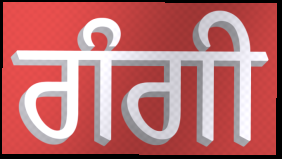
ਗੰਗੀ